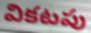
వికటపు